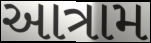
આત્રામ